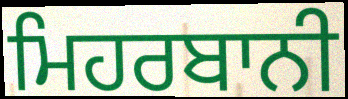
ਮਿਹਰਬਾਨੀ